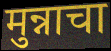
मुन्नाचा